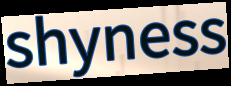
shyness